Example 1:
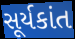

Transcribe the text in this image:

સૂર્યકાંત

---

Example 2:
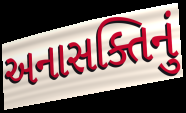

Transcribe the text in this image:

અનાસક્તિનું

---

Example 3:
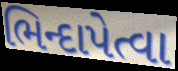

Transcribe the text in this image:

ભિન્દાપેત્વા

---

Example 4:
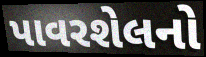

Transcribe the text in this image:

પાવરશેલનો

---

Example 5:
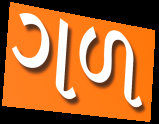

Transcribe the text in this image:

ગળ